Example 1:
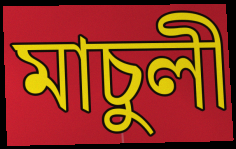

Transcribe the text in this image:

মাচুলী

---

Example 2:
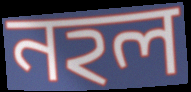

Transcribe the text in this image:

নহল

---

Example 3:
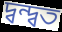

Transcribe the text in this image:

দ্বন্দ্বত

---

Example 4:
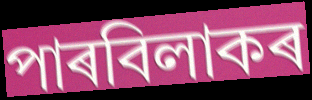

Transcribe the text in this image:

পাৰবিলাকৰ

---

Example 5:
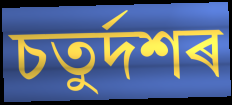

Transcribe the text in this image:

চতুৰ্দশৰ